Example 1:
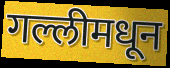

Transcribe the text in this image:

गल्लीमधून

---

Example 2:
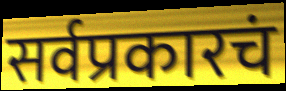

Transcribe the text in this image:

सर्वप्रकारचं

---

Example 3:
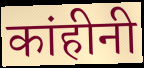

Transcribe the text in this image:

कांहीनी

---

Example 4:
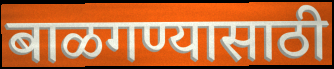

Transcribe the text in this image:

बाळगण्यासाठी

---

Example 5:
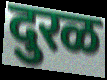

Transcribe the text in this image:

दुरळ